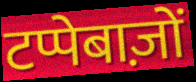
टप्पेबाज़ों